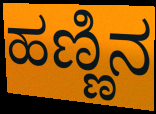
ಹಣ್ಣಿನ